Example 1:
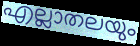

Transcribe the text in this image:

എല്ലാതലയും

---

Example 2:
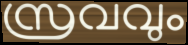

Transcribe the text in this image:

സ്രവവും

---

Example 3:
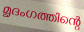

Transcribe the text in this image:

മൃദംഗത്തിന്റെ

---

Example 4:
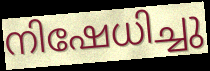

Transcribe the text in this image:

നിഷേധിച്ചു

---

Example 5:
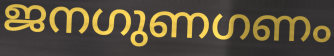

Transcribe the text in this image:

ജനഗുണഗണം